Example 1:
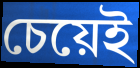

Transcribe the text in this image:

চেয়েই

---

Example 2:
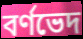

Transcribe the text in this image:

বর্ণভেদ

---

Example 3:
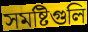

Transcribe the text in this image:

সমষ্টিগুলি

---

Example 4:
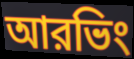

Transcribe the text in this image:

আরভিং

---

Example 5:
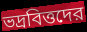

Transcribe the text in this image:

ভদ্রবিত্তদের